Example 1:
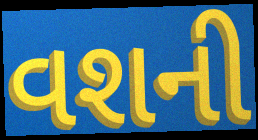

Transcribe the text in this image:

વશની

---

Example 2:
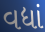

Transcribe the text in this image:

વદ્યાં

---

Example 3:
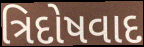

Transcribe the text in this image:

ત્રિદોષવાદ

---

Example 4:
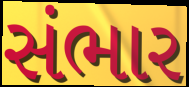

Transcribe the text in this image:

સંભાર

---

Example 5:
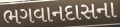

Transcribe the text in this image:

ભગવાનદાસના